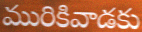
మురికివాడకు